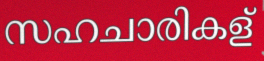
സഹചാരികള്